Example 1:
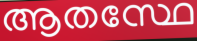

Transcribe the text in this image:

ആതസ്ഥേ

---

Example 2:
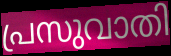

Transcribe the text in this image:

പ്രസുവാതി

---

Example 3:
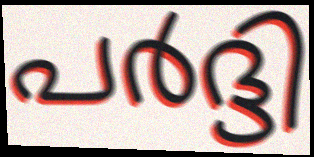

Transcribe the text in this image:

പർദ്ദി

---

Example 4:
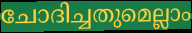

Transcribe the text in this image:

ചോദിച്ചതുമെല്ലാം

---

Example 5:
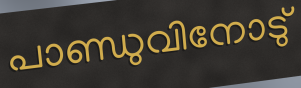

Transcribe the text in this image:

പാണ്ഡുവിനോടു്